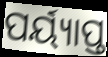
ପର୍ୟ୍ୟାପ୍ତ